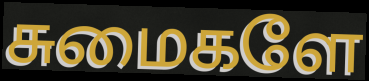
சுமைகளே